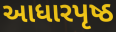
આધારપૃષ્ઠ